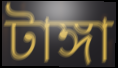
টাঙ্গা